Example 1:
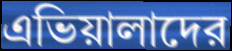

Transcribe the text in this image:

এভিয়ালাদের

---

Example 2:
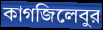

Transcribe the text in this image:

কাগজিলেবুর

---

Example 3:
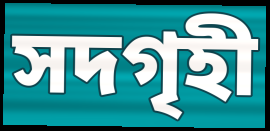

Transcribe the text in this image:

সদগৃহী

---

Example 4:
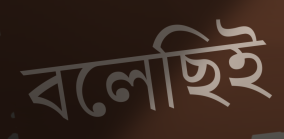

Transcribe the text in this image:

বলেছিই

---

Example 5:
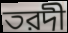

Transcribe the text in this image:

তরদী